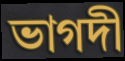
ভাগদী